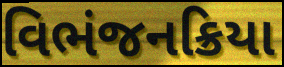
વિભંજનક્રિયા